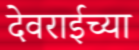
देवराईच्या